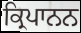
ਕ੍ਰਿਪਾਨਨ